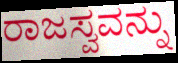
ರಾಜಸ್ವವನ್ನು